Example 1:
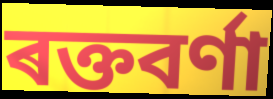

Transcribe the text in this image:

ৰক্তবৰ্ণা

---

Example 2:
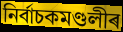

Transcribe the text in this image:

নিৰ্বাচকমণ্ডলীৰ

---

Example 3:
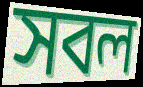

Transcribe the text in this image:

সবল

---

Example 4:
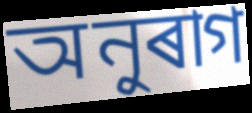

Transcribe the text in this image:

অনুৰাগ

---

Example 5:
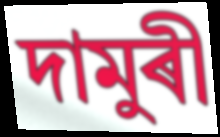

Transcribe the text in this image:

দামুৰী